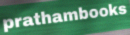
prathambooks